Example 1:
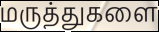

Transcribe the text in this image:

மருத்துகளை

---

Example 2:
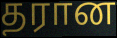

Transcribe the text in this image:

தரான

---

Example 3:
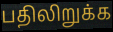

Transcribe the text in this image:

பதிலிறுக்க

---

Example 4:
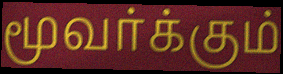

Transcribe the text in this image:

மூவர்க்கும்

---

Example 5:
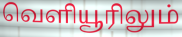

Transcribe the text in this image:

வெளியூரிலும்